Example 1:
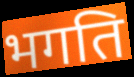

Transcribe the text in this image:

भगति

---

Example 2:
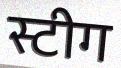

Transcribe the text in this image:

स्टीग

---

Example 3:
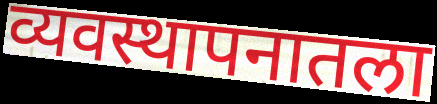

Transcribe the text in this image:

व्यवस्थापनातला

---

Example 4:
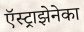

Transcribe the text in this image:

ऍस्ट्राझेनेका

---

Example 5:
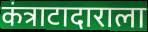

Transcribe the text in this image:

कंत्राटादाराला